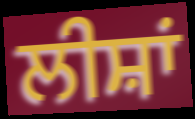
ਲੀਸ਼ਾਂ